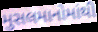
મુસલમાનોમાંથી